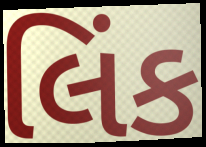
લિંક